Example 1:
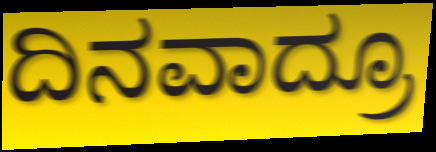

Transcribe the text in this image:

ದಿನವಾದ್ರೂ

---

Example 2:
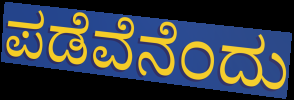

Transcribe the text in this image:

ಪಡೆವೆನೆಂದು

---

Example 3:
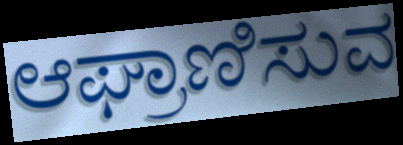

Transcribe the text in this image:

ಆಘ್ರಾಣಿಸುವ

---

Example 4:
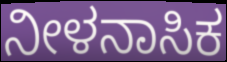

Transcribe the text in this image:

ನೀಳನಾಸಿಕ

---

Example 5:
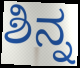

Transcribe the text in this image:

ಶಿನ್ನ